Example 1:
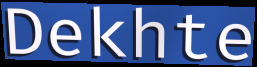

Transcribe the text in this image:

Dekhte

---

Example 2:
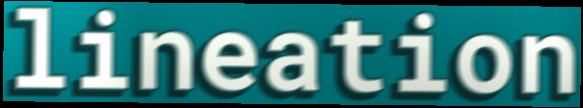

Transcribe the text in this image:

lineation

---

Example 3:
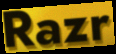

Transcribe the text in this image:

Razr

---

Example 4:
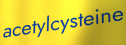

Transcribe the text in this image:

acetylcysteine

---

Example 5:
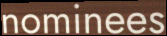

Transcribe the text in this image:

nominees